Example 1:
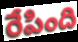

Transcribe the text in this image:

రేపింది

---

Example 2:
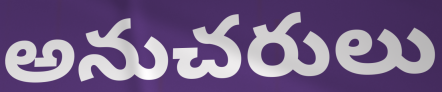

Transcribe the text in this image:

అనుచరులు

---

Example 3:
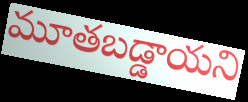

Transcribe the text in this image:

మూతబడ్డాయని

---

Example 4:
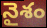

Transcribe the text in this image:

నైశం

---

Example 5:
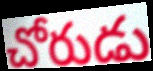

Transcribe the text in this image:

చోరుడు